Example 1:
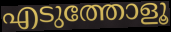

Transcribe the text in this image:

എടുത്തോളൂ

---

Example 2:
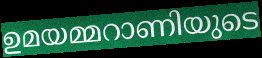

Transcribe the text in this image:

ഉമയമ്മറാണിയുടെ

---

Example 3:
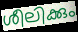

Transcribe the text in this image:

ശീലിക്കും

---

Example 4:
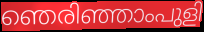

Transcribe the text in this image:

ഞെരിഞ്ഞാംപുളി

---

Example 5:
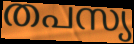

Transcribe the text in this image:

തപസ്യ